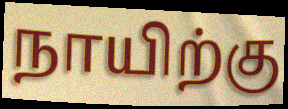
நாயிற்கு